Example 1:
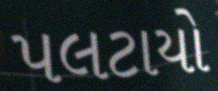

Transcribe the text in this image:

પલટાયો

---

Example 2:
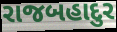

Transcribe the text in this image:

રાજબહાદુર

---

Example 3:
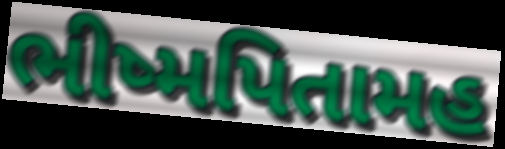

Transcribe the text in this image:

ભીષ્મપિતામહ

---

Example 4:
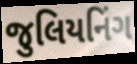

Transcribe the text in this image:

જુલિયનિંગ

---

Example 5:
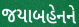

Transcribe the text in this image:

જયાબહેનને